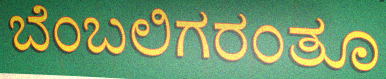
ಬೆಂಬಲಿಗರಂತೂ